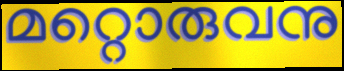
മറ്റൊരുവനു